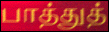
பாத்துத்